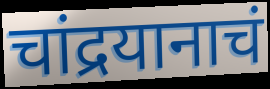
चांद्रयानाचं